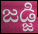
జడ్జి